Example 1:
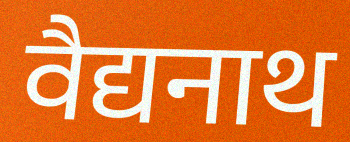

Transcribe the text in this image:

वैद्यनाथ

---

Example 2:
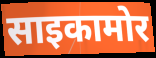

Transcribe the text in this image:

साइकामोर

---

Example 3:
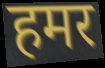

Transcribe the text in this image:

हमर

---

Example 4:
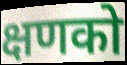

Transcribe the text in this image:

क्षणको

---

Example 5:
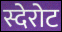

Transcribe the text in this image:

स्देरोट